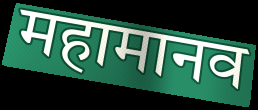
महामानव